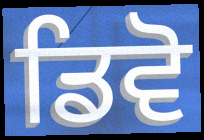
ਡਿਵੋ